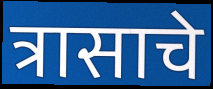
त्रासाचे